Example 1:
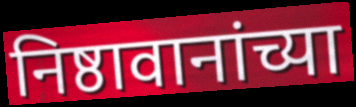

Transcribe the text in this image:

निष्ठावानांच्या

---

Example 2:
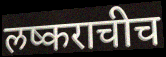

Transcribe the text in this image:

लष्कराचीच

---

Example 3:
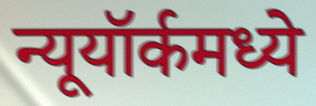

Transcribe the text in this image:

न्यूयॉर्कमध्ये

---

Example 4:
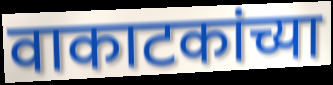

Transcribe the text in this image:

वाकाटकांच्या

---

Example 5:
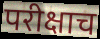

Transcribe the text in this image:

परीक्षाच